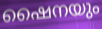
ഷൈനയും